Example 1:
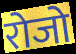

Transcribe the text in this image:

रोजो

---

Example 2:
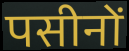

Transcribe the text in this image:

पसीनों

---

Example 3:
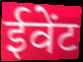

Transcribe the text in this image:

ईवेंट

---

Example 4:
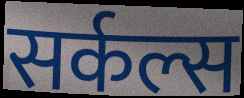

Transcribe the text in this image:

सर्कल्‍स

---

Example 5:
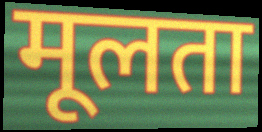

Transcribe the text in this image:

मूलता